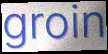
groin